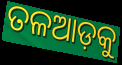
ତଳଆଡ଼କୁ